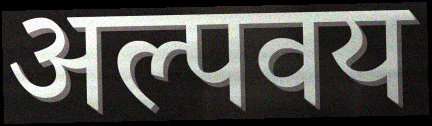
अल्पवय